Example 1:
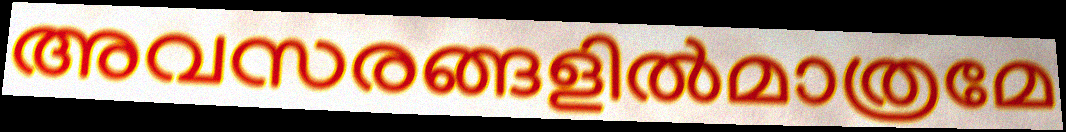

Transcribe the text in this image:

അവസരങ്ങളിൽമാത്രമേ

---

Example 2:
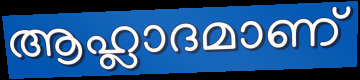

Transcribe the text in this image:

ആഹ്ലാദമാണ്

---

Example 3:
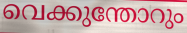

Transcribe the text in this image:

വെക്കുന്തോറും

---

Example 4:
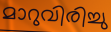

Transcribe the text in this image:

മാറുവിരിച്ചു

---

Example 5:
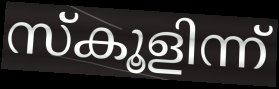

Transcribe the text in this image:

സ്കൂളിന്ന്